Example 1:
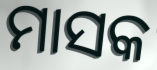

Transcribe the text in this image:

ମାସକ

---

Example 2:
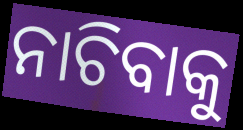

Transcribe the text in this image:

ନାଚିବାକୁ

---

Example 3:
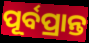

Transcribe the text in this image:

ପୂର୍ବପ୍ରାନ୍ତ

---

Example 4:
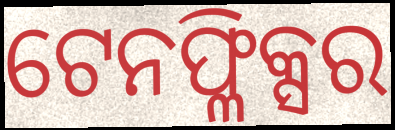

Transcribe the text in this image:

ଟେନଫ୍ଳିକ୍ସର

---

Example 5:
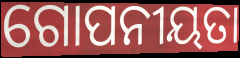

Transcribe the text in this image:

ଗୋପନୀୟତା